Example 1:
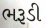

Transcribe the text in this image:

ભરૂડી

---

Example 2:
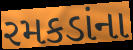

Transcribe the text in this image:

રમકડાંના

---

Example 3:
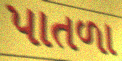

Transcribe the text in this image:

પાતળા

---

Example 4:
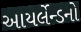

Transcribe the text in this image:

આયર્લેન્ડનો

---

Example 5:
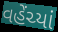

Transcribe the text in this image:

વહેંચ્યાં